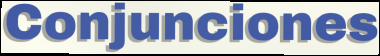
Conjunciones